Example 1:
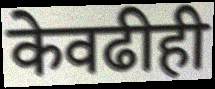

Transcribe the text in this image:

केवढीही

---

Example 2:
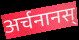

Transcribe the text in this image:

अर्चनानस्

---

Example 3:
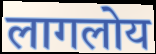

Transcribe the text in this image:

लागलोय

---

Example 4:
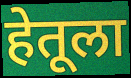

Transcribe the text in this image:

हेतूला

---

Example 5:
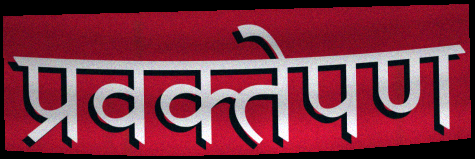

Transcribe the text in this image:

प्रवक्तेपण